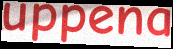
uppena